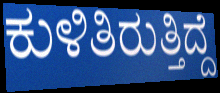
ಕುಳಿತಿರುತ್ತಿದ್ದೆ